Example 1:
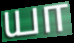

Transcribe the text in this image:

யா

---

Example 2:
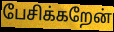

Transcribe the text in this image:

பேசிக்கறேன்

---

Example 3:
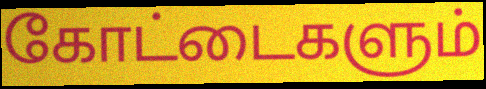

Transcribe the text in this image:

கோட்டைகளும்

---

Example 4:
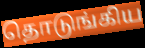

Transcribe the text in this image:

தொடுங்கிய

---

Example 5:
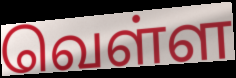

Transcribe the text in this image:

வெள்ள